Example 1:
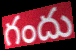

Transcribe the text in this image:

గందు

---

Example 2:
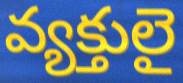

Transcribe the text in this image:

వ్యక్తులై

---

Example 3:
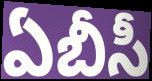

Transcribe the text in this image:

ఏబీసీ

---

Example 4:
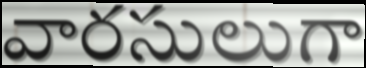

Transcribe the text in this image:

వారసులుగా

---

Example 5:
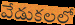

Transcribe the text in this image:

వేడుకలలో